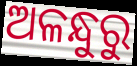
ଅଳନ୍ଧୁରୁ